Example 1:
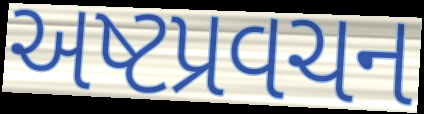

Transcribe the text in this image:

અષ્ટપ્રવચન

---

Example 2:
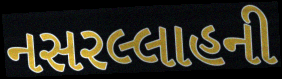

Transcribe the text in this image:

નસરલ્લાહની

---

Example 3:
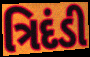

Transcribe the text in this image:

ત્રિદંડી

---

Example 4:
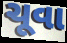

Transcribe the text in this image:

ચૂવા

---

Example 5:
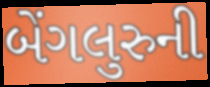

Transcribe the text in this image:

બેંગલુરુની